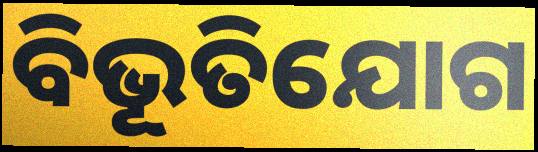
ବିଭୂତିଯୋଗ